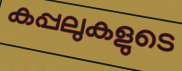
കപ്പലുകളുടെ